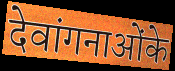
देवांगनाओंके